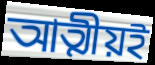
আত্মীয়ই